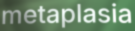
metaplasia